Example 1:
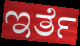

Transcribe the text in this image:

ಇರ್ತೆ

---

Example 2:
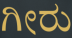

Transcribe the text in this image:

ಗೀರು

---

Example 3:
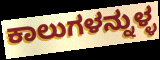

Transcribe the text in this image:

ಕಾಲುಗಳನ್ನುಳ್ಳ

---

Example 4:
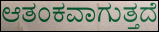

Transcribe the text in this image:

ಆತಂಕವಾಗುತ್ತದೆ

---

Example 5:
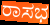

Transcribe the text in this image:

ರಾಸಭ